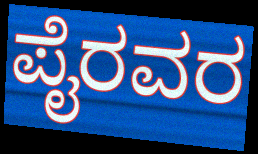
ಪೈರವರ